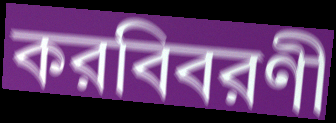
করবিবরণী